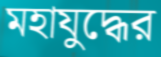
মহাযুদ্ধের